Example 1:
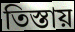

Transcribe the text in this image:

তিস্তায়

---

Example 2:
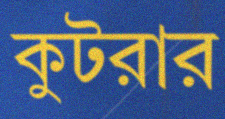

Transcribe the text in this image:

কুটরার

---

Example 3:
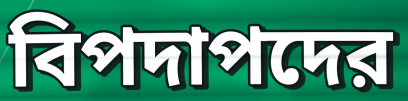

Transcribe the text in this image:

বিপদাপদের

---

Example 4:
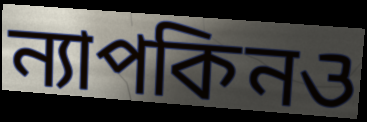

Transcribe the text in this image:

ন্যাপকিনও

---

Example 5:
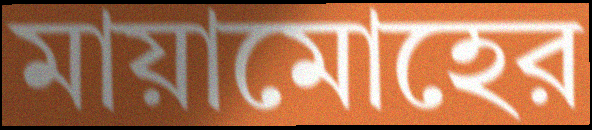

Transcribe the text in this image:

মায়ামোহের